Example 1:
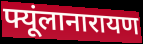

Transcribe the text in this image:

फ्यूंलानारायण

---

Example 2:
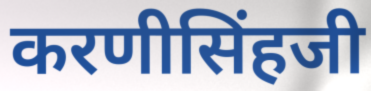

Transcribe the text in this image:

करणीसिंहजी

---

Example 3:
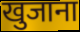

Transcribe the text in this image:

खुजाना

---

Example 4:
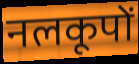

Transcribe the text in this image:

नलकूपों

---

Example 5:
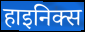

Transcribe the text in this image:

हाइनिक्स